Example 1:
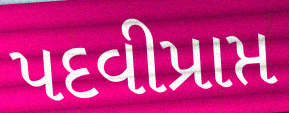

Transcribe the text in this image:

પદવીપ્રાપ્ત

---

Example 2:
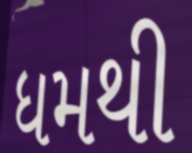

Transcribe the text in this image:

ધમથી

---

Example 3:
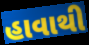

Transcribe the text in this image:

હાવાથી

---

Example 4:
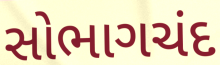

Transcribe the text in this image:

સોભાગચંદ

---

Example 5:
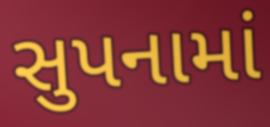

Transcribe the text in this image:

સુપનામાં